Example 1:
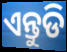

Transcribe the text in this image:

ଏନ୍ତୁଡି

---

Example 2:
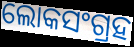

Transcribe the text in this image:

ଲୋକସଂଗ୍ରହ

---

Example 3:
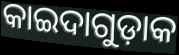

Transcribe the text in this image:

କାଇଦାଗୁଡ଼ାକ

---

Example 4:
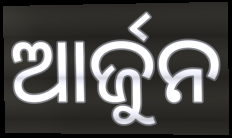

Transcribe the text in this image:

ଆର୍ଜୁନ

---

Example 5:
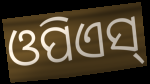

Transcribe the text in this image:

ଓପିଏସ୍